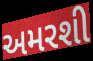
અમરશી